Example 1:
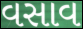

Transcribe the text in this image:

વસાવ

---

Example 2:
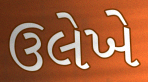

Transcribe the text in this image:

ઉલેખે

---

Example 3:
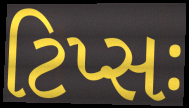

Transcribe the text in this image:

ટિપ્સઃ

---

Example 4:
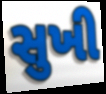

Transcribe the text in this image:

સુખી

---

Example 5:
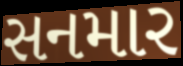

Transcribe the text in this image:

સનમાર